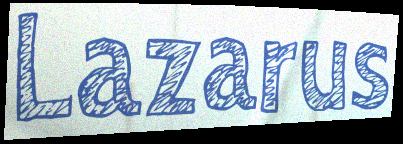
Lazarus